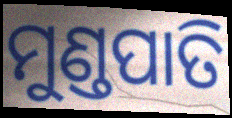
ମୁଣ୍ଡପାତି